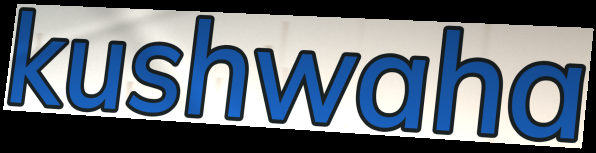
kushwaha